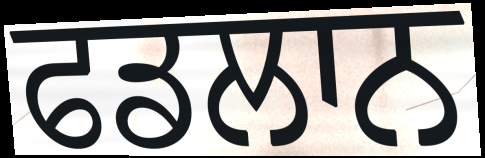
ਫਡਲਾਨ